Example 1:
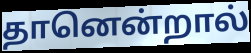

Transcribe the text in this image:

தானென்றால்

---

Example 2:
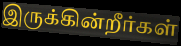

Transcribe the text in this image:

இருக்கின்றீர்கள்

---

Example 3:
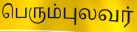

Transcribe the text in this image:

பெரும்புலவர்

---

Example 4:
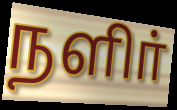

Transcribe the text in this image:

நளிர்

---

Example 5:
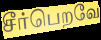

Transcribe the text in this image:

சீர்பெறவே